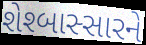
શેશ્બાસ્સારને